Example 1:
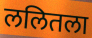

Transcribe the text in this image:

ललितला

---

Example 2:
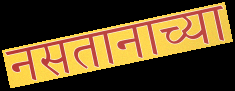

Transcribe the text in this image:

नसतानाच्या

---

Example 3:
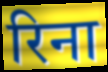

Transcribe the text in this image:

रिना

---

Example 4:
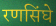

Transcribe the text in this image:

रणसिंघे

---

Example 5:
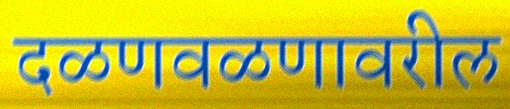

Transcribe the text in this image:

दळणवळणावरील